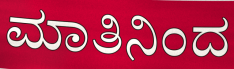
ಮಾತಿನಿಂದ